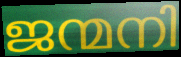
ജന്മനി